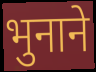
भुनाने